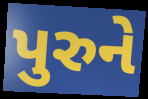
પુરુને